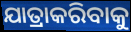
ଯାତ୍ରାକରିବାକୁ